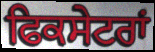
ਫਿਕਸੇਟਰਾਂ